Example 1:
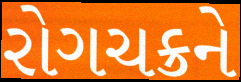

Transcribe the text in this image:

રોગચક્રને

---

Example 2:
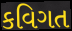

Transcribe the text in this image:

કવિગત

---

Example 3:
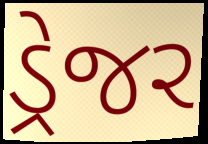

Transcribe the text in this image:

ડ્રેજર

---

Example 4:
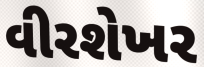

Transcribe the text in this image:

વીરશેખર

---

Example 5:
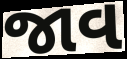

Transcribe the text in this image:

જાવ